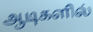
ஆடிகளில்